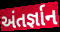
અંતર્જ્ઞાન